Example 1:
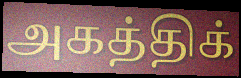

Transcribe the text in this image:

அகத்திக்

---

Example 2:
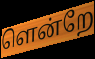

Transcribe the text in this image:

ளென்றே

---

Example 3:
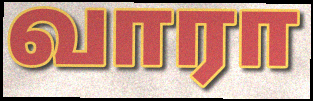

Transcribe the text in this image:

வாரா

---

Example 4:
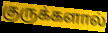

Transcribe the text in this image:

குருக்களால்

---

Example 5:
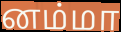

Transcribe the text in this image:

னம்மா